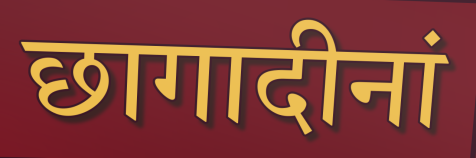
छागादीनां